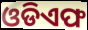
ଓଡିଏଫ